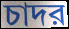
চাদর